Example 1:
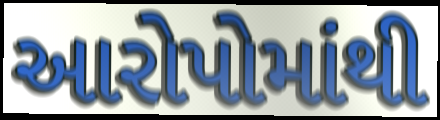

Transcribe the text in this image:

આરોપોમાંથી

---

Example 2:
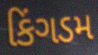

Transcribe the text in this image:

કિંગડમ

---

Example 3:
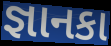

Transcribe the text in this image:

જ્ઞાનકા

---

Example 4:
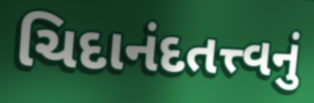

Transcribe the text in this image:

ચિદાનંદતત્ત્વનું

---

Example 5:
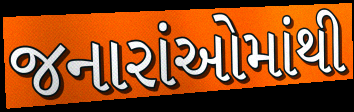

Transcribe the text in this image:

જનારાંઓમાંથી